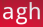
agh